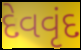
દેવવૃંદ